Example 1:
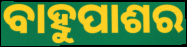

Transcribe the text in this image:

ବାହୁପାଶର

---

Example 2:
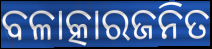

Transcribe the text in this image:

ବଳାତ୍କାରଜନିତ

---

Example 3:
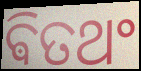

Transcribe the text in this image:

ଵିତଥଂ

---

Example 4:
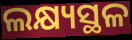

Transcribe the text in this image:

ଲକ୍ଷ୍ୟସ୍ଥଳ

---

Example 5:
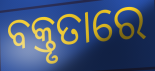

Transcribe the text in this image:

ବକ୍ତୃତାରେ